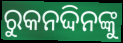
ରୁକନଦ୍ଦିନଙ୍କୁ